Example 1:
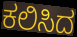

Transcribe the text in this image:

ಕಲಿಸಿದ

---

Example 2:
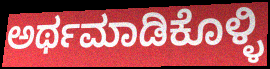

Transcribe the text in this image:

ಅರ್ಥಮಾಡಿಕೊಳ್ಳಿ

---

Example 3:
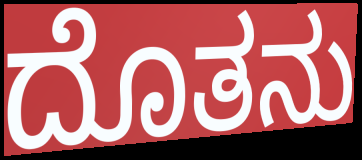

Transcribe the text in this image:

ದೊತನು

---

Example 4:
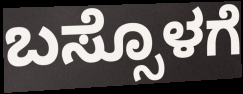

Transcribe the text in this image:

ಬಸ್ಸೊಳಗೆ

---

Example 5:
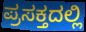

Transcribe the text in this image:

ಪ್ರಸಕ್ತದಲ್ಲಿ